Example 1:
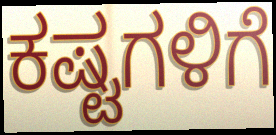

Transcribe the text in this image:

ಕಷ್ಟಗಳಿಗೆ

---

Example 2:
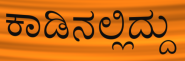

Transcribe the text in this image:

ಕಾಡಿನಲ್ಲಿದ್ದು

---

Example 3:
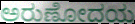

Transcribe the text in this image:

ಅರುಣೋದಯ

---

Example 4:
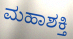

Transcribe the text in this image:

ಮಹಾಶಕ್ತಿ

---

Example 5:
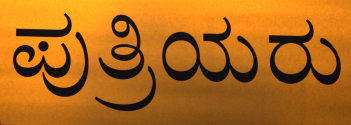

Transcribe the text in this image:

ಪುತ್ರಿಯರು